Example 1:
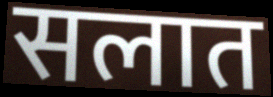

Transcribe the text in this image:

सलात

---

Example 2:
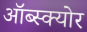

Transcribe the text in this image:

ऑब्स्क्योर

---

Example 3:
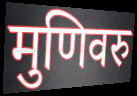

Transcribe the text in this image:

मुणिवरु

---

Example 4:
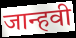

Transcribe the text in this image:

जान्हवी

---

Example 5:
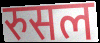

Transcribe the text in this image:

रुसल